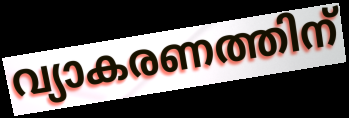
വ്യാകരണത്തിന്